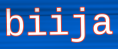
biija